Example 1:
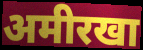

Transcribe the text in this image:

अमीरखा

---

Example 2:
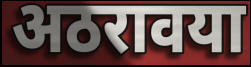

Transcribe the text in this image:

अठरावया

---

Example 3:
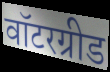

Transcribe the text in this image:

वॉटरग्रीड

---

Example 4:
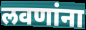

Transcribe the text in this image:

लवणांना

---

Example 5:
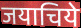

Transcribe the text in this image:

जयाचिये